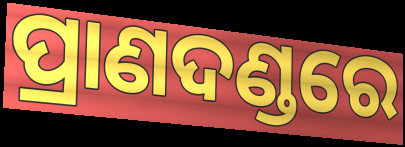
ପ୍ରାଣଦଣ୍ଡରେ